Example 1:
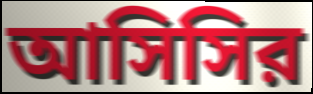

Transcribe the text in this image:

আসিসির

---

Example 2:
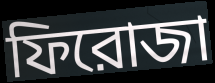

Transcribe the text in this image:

ফিরোজা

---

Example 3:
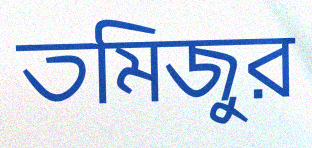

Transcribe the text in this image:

তমিজুর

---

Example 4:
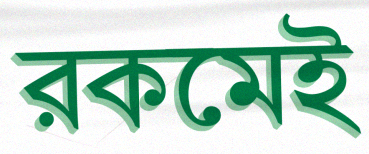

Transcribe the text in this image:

রকমেই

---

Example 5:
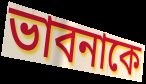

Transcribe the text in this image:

ভাবনাকে